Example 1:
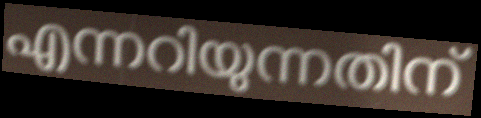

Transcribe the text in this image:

എന്നറിയുന്നതിന്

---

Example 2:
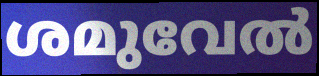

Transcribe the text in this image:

ശമുവേൽ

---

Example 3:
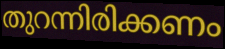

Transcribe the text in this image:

തുറന്നിരിക്കണം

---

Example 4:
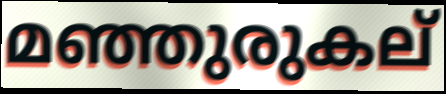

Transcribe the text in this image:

മഞ്ഞുരുകല്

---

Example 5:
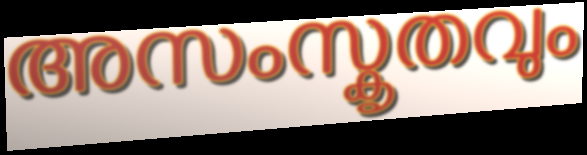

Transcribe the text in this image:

അസംസ്കൃതവും